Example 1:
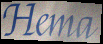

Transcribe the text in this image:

Hema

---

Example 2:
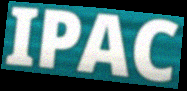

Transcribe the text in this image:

IPAC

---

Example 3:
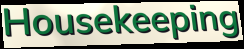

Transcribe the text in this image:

Housekeeping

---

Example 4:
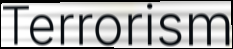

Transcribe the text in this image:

Terrorism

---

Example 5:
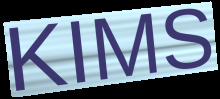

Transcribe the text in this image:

KIMS